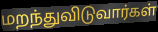
மறந்துவிடுவார்கள்